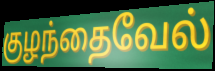
குழந்தைவேல்